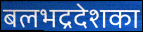
बलभद्रदेशका